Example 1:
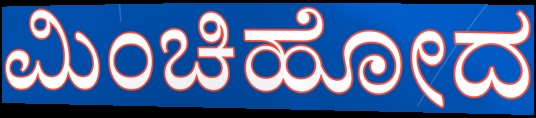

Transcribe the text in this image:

ಮಿಂಚಿಹೋದ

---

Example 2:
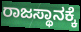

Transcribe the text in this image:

ರಾಜಸ್ಥಾನಕ್ಕೆ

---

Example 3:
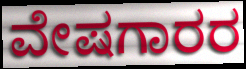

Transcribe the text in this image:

ವೇಷಗಾರರ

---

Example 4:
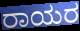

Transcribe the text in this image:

ರಾಯರ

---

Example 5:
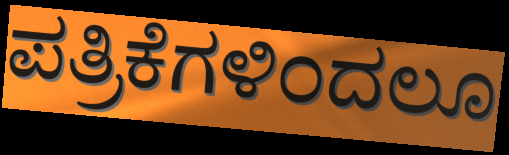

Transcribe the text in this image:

ಪತ್ರಿಕೆಗಳಿಂದಲೂ